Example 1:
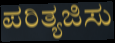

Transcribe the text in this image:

ಪರಿತ್ಯಜಿಸು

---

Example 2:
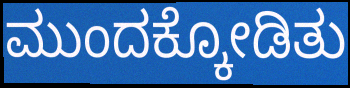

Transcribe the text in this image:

ಮುಂದಕ್ಕೋಡಿತು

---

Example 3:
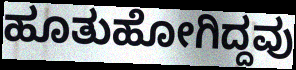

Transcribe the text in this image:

ಹೂತುಹೋಗಿದ್ದವು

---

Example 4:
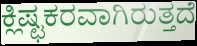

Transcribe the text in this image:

ಕ್ಲಿಷ್ಟಕರವಾಗಿರುತ್ತದೆ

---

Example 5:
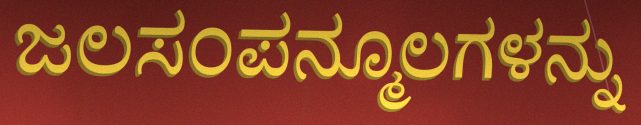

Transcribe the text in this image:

ಜಲಸಂಪನ್ಮೂಲಗಳನ್ನು